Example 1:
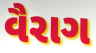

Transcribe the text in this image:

વૈરાગ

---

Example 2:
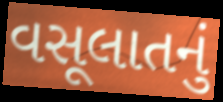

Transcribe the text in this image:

વસૂલાતનું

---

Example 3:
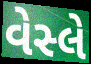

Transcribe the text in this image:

વેસ્લે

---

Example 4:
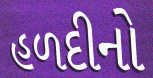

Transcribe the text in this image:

હળદીનો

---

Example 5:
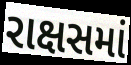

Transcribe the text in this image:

રાક્ષસમાં